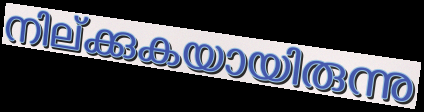
നില്ക്കുകയായിരുന്നു